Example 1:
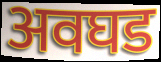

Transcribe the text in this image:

अवघड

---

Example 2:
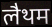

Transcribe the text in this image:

लैथम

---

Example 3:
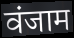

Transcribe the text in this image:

वंजाम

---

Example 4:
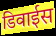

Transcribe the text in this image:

डिवाईस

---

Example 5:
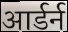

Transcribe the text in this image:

आर्डर्न